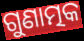
ଗୁଣାତ୍ମକ